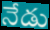
నేడు